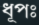
ধূপঃ